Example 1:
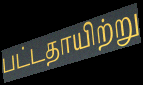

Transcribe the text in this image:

பட்டதாயிற்று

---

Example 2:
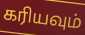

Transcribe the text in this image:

கரியவும்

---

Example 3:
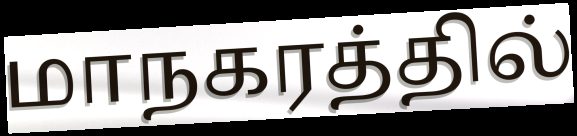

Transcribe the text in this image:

மாநகரத்தில்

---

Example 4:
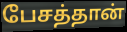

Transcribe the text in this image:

பேசத்தான்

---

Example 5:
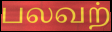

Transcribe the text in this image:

பலவற்